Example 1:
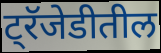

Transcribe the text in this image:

ट्रॅजेडीतील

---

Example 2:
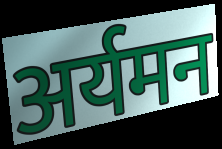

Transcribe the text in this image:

अर्यमन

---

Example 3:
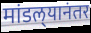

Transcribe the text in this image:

मांडल्यानंतर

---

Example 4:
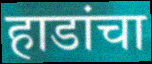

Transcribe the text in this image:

हाडांचा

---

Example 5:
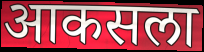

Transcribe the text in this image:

आकसला